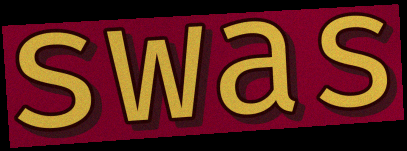
swas